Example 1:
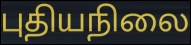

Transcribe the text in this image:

புதியநிலை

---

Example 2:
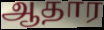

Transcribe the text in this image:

ஆதார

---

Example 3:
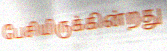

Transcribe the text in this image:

பேசியிருக்கின்றது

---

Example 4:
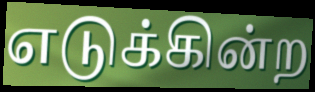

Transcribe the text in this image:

எடுக்கின்ற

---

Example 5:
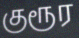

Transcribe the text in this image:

குரூர